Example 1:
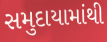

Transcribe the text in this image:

સમુદાયામાંથી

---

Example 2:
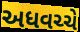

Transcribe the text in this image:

અધવચ્ચે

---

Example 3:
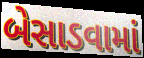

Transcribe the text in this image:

બેસાડવામાં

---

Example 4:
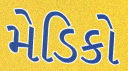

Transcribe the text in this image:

મેડિકો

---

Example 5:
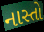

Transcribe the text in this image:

નાસ્તો